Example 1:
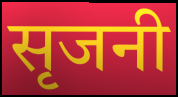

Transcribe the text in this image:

सृजनी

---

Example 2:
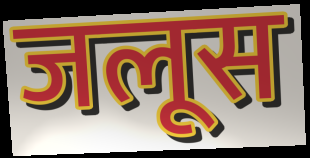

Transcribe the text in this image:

जलूस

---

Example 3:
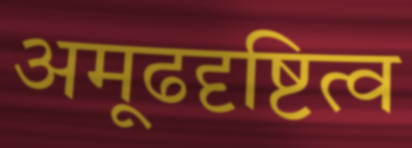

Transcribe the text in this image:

अमूढदृष्टित्व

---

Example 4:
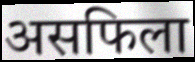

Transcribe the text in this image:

असफिला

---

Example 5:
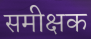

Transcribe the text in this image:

समीक्षक